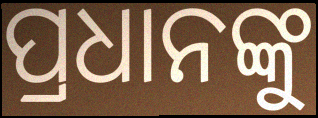
ପ୍ରଧାନଙ୍କୁ